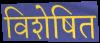
विशेषित